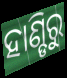
ହାଣ୍ଡିରୁ